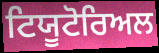
ਟਿਯੂਟੋਰਿਅਲ